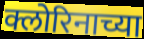
क्लोरिनाच्या